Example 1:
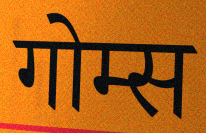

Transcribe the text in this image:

गोम्स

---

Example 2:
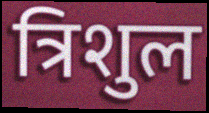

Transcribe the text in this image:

त्रिशुल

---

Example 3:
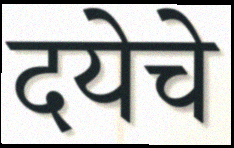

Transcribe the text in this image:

दयेचे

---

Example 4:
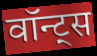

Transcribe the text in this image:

वॉन्ट्स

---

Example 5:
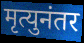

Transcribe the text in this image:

मृत्युनंतर